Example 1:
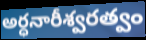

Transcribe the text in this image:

అర్ధనారీశ్వరత్వం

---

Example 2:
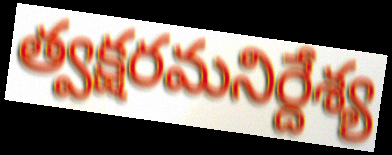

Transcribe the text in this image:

త్వక్షరమనిర్దేశ్య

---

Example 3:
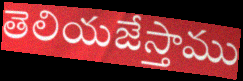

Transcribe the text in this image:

తెలియజేస్తాము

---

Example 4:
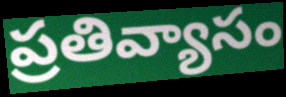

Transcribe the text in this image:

ప్రతివ్యాసం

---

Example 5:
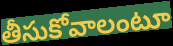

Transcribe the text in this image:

తీసుకోవాలంటూ